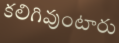
కలిగివుంటారు